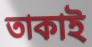
তাকাই